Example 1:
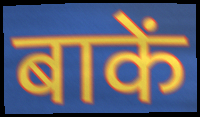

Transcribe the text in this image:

बाकें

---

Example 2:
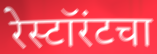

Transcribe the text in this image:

रेस्टॉरंटचा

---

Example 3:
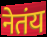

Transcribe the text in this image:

नेतंय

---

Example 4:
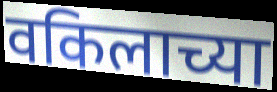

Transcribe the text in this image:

वकिलाच्या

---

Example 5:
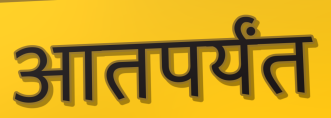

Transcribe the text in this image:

आतपर्यंत